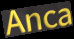
Anca